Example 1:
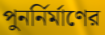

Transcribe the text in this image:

পুনর্নির্মাণের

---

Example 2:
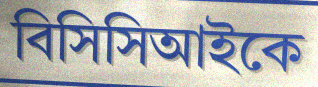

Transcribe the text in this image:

বিসিসিআইকে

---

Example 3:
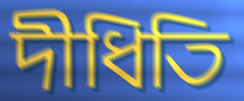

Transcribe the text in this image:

দীধিতি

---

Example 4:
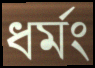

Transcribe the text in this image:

ধর্মং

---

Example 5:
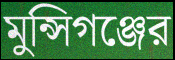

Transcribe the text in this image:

মুন্সিগঞ্জের